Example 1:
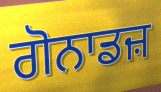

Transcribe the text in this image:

ਗੋਨਾਡਜ਼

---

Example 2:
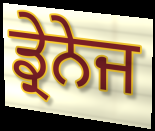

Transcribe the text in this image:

ਡ੍ਰੇਨੇਜ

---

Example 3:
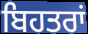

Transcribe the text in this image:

ਬਿਹਤਰਾਂ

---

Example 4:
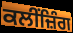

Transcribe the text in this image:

ਕਲੀਂਜ਼ਿੰਗ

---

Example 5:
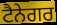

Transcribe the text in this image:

ਟੈਨੇਗਰ